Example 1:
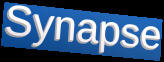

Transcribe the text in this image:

Synapse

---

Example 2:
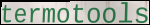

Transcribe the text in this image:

termotools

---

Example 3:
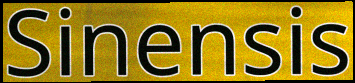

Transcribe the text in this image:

Sinensis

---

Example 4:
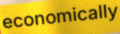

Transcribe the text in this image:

economically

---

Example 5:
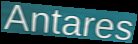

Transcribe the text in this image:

Antares